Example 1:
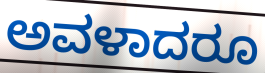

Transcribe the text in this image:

ಅವಳಾದರೂ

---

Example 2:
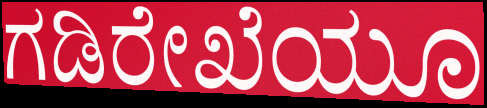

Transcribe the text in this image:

ಗಡಿರೇಖೆಯೂ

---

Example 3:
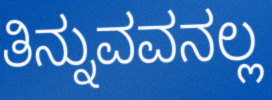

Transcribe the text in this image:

ತಿನ್ನುವವನಲ್ಲ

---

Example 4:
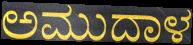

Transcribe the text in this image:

ಅಮುದಾಳ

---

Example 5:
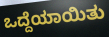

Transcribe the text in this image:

ಒದ್ದೆಯಾಯಿತು